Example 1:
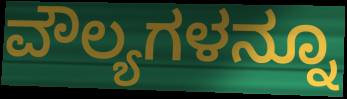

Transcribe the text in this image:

ವೌಲ್ಯಗಳನ್ನೂ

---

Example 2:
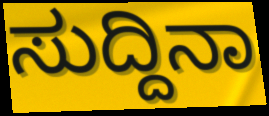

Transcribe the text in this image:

ಸುದ್ದಿನಾ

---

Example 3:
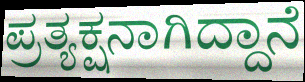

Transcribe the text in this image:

ಪ್ರತ್ಯಕ್ಷನಾಗಿದ್ದಾನೆ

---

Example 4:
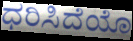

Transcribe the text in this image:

ಧರಿಸಿದೆಯೊ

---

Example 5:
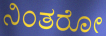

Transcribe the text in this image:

ನಿಂತರೋ